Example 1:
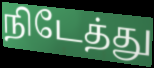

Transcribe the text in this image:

நிடேத்து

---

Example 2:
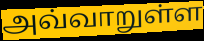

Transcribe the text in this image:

அவ்வாறுள்ள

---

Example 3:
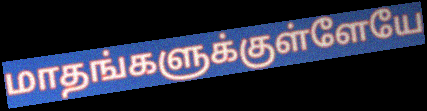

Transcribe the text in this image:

மாதங்களுக்குள்ளேயே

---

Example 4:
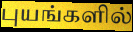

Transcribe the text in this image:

புயங்களில்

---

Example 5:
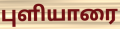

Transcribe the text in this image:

புளியாரை